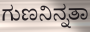
ಗುಣನಿನ್ನತಾ